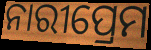
ନାରୀପ୍ରେମ